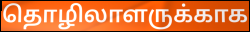
தொழிலாளருக்காக